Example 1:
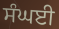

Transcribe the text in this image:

ਸੰਘਈ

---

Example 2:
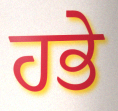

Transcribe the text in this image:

ਹਭੇ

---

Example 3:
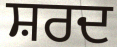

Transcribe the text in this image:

ਸ਼ਰਦ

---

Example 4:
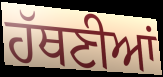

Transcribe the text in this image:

ਹੱਥਣੀਆਂ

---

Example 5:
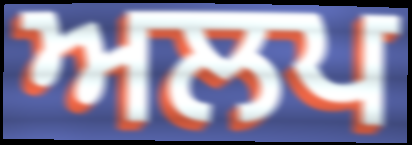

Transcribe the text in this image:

ਅਲਪ